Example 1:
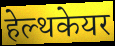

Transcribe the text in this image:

हेल्थकेयर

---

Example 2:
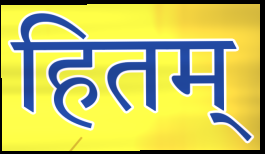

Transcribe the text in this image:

हितम्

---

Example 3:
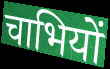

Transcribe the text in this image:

चाभियों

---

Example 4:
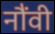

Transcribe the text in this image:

नौंवी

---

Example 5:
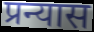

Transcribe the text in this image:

प्रन्यास